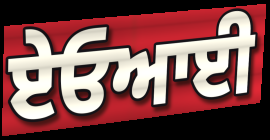
ਏਓਆਈ